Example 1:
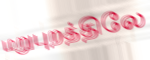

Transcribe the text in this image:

மறுபுறத்திலே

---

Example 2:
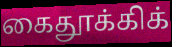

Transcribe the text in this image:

கைதூக்கிக்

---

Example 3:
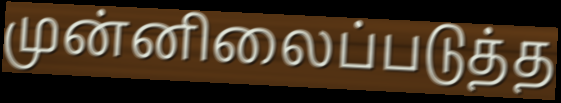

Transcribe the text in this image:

முன்னிலைப்படுத்த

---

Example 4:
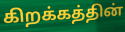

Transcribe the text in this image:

கிறக்கத்தின்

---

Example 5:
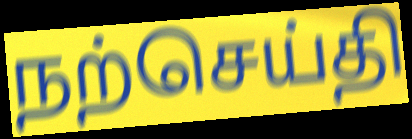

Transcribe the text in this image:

நற்செய்தி